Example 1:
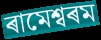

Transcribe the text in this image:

ৰামেশ্বৰম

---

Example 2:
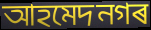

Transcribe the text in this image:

আহমেদনগৰ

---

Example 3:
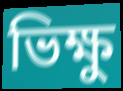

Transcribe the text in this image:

ভিক্ষু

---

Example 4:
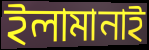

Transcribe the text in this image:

ইলামানাই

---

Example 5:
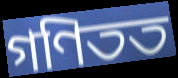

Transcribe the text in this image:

গণিতত